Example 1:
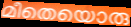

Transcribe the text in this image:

മീതെയൊരു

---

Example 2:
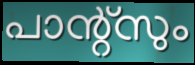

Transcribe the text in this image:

പാന്റ്സും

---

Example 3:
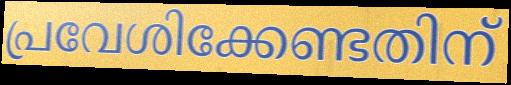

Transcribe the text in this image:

പ്രവേശിക്കേണ്ടതിന്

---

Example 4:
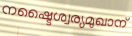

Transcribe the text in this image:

നഷ്ടൈശ്വര്യമുഖാന്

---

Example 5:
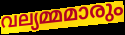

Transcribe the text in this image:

വല്യമ്മമാരും